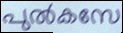
പുൽകസേ